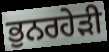
ਭੁਨਰਹੇੜੀ